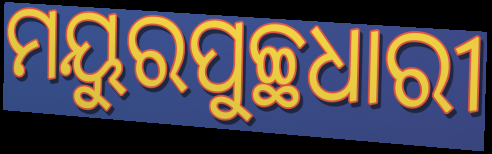
ମୟୁରପୁଚ୍ଛଧାରୀ